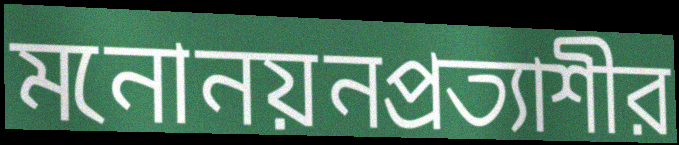
মনোনয়নপ্রত্যাশীর